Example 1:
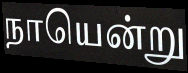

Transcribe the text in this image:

நாயென்று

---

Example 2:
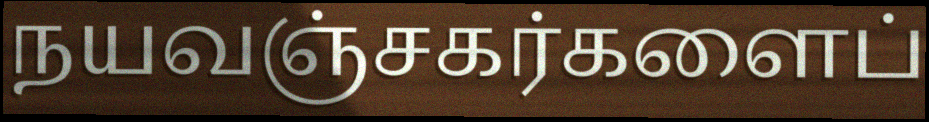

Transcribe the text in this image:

நயவஞ்சகர்களைப்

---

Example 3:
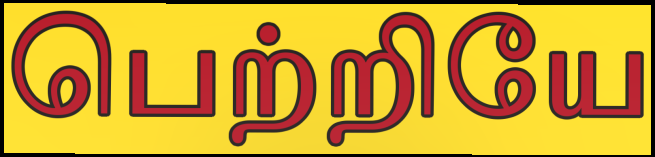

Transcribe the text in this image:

பெற்றியே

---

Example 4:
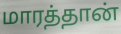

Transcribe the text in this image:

மாரத்தான்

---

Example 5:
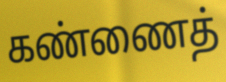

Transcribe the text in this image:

கண்ணைத்